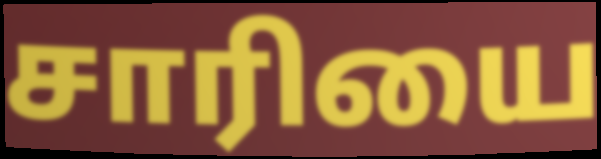
சாரியை